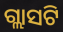
ଗ୍ଲାସଟି